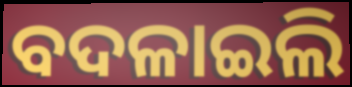
ବଦଳାଇଲି